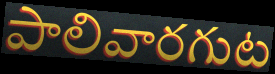
పాలివారగుట